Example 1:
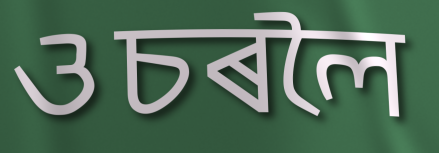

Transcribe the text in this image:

ওচৰলৈ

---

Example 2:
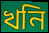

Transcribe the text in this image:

খনি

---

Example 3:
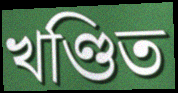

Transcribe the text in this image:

খণ্ডিত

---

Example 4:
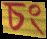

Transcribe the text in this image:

চং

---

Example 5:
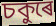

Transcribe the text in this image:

চকুৰে